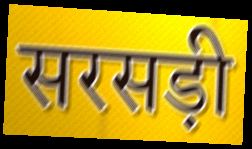
सरसड़ी